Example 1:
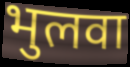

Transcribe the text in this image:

भुलवा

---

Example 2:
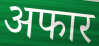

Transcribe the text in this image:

अफार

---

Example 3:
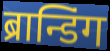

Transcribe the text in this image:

ब्रान्डिंग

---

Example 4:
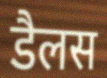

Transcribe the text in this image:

डैलस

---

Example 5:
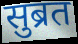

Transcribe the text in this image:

सुब्रत